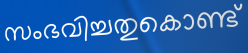
സംഭവിച്ചതുകൊണ്ട്